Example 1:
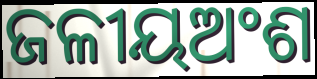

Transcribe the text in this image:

ଜଳୀୟଅଂଶ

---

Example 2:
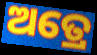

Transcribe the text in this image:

ଅତ୍ରେ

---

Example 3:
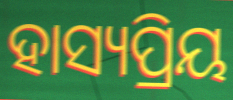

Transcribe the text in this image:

ହାସ୍ୟପ୍ରିୟ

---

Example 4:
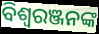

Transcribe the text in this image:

ବିଶ୍ବରଞ୍ଜନଙ୍କ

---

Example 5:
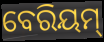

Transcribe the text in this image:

ବେରିୟମ୍